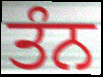
ਤੰਨ